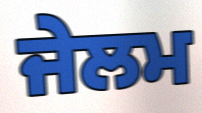
ਜੇਲਮ